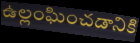
ఉల్లంఘించడానికి